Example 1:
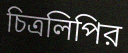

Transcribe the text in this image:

চিত্রলিপির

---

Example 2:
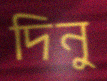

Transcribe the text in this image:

দিনু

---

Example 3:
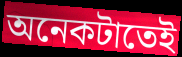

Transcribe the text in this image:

অনেকটাতেই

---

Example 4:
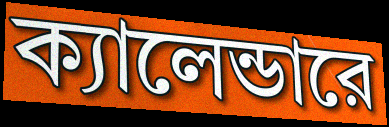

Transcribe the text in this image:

ক্যালেন্ডারে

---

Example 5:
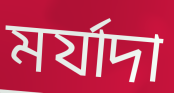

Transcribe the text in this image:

মর্যাদা